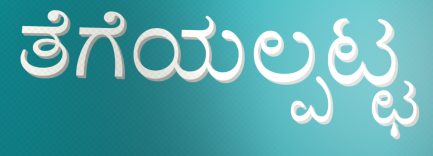
ತೆಗೆಯಲ್ಪಟ್ಟ